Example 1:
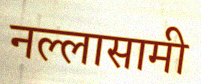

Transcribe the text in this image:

नल्लासामी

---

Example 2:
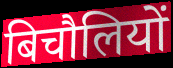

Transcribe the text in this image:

बिचौलियों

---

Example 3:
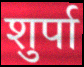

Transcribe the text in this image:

शुर्पा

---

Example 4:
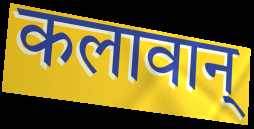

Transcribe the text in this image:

कलावान्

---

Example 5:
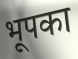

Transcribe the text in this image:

भूपका